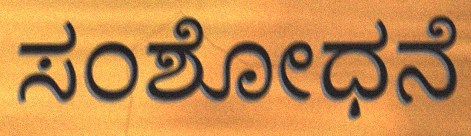
ಸಂಶೋಧನೆ